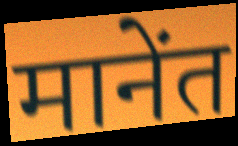
मानेंत